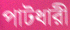
পাটধারী